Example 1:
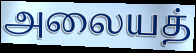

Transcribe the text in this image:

அலையத்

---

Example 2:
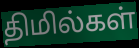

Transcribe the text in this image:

திமில்கள்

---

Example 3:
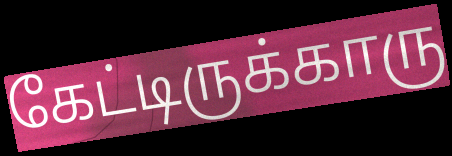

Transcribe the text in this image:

கேட்டிருக்காரு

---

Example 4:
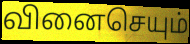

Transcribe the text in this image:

வினைசெயும்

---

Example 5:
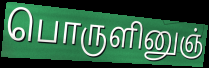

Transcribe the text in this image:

பொருளினுஞ்